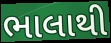
ભાલાથી